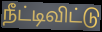
நீட்டிவிட்டு